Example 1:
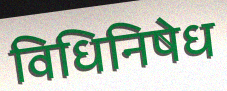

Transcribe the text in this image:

विधिनिषेध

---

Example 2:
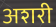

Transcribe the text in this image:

अशरी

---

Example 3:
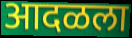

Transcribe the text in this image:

आदळला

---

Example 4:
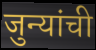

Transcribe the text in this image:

जुन्यांची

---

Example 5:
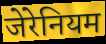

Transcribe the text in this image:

जेरेनियम